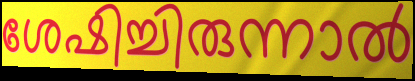
ശേഷിച്ചിരുന്നാൽ